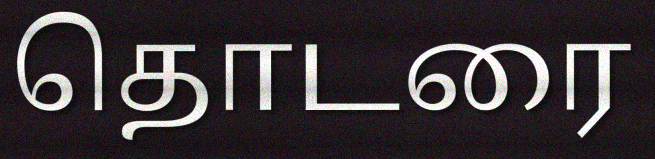
தொடரை